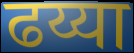
ढय्या